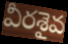
వీరశైవ